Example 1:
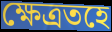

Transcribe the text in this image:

ক্ষেত্ৰতহে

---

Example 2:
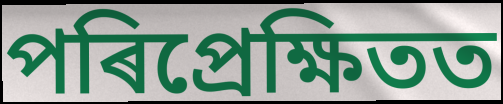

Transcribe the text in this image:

পৰিপ্ৰেক্ষিতত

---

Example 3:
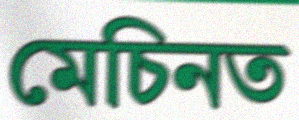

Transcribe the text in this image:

মেচিনত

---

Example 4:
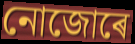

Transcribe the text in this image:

নোজোৰে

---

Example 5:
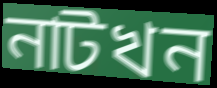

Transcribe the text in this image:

নাটখন